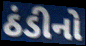
ઠંડીનો